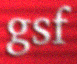
gsf